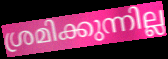
ശ്രമിക്കുന്നില്ല